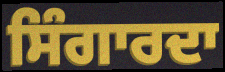
ਸਿੰਗਾਰਦਾ